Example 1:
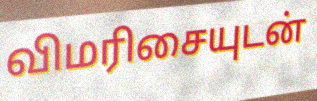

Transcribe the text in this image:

விமரிசையுடன்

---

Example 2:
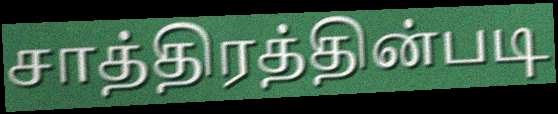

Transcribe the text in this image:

சாத்திரத்தின்படி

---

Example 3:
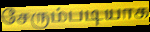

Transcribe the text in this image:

சேரும்படியாக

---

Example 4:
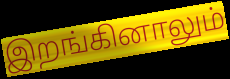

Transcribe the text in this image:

இறங்கினாலும்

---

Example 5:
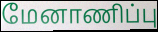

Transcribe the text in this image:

மேனாணிப்பு